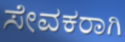
ಸೇವಕರಾಗಿ